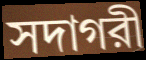
সদাগরী